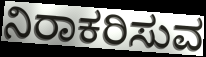
ನಿರಾಕರಿಸುವ